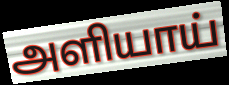
அளியாய்